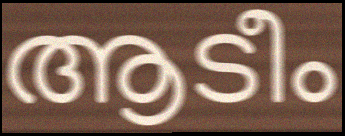
ആടീം